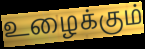
உழைக்கும்